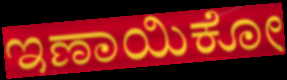
ಇಣಾಯಿಕೋ